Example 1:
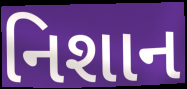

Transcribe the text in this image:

નિશાન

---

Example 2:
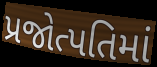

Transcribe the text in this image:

પ્રજોત્પતિમાં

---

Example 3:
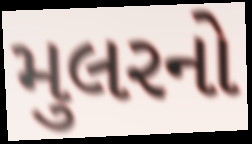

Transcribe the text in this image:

મુલરનો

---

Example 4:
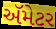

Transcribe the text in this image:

ઍમેટર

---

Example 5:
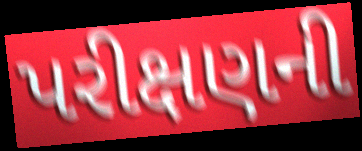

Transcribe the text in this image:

પરીક્ષણની